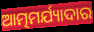
ଆତ୍ମମର୍ଯ୍ୟାଦାର